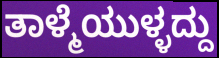
ತಾಳ್ಮೆಯುಳ್ಳದ್ದು